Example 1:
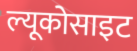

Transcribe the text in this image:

ल्यूकोसाइट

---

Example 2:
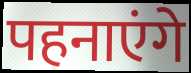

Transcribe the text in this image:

पहनाएंगे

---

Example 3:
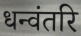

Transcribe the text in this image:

धन्वंतरि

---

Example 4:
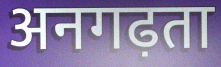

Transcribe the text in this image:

अनगढ़ता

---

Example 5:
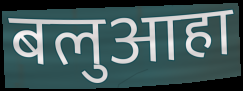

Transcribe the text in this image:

बलुआहा